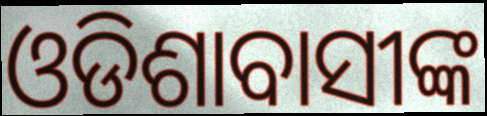
ଓଡିଶାବାସୀଙ୍କ